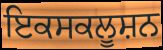
ਇਕਸਕਲੂਸ਼ਨ